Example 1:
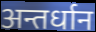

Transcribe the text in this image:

अन्तर्धान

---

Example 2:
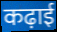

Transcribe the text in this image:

कढ़ाई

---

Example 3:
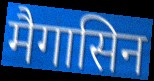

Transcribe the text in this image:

मैगासिन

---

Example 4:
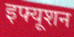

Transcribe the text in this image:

इफ्यूशन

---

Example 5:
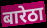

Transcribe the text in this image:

बारेठा